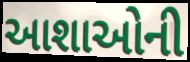
આશાઓની